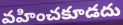
వహించకూడదు